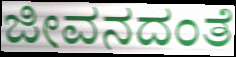
ಜೀವನದಂತೆ